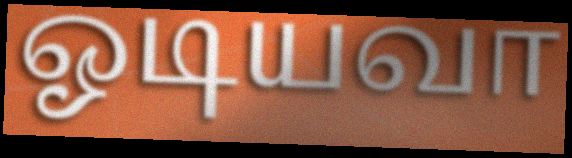
ஓடியவா